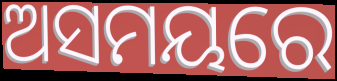
ଅସମୟରେ